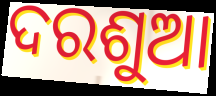
ଦରଶୁଆ